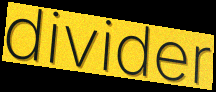
divider